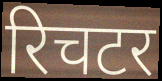
रिचटर